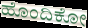
ಹೊಂದಿಕೋ